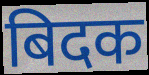
बिदक